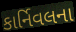
કાર્નિવલના